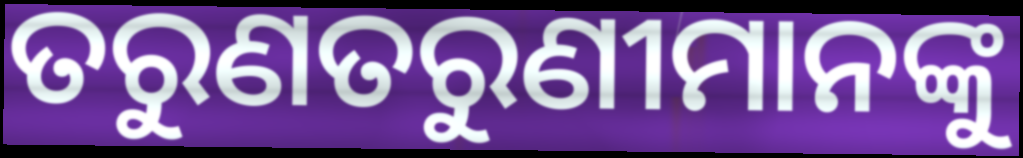
ତରୁଣତରୁଣୀମାନଙ୍କୁ